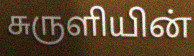
சுருளியின்